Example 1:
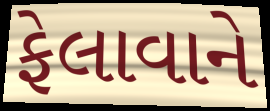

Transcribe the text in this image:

ફેલાવાને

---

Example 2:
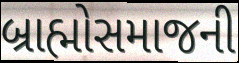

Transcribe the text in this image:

બ્રાહ્મોસમાજની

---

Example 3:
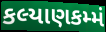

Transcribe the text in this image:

કલ્યાણકમ્મં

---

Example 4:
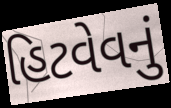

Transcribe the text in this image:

હિટવેવનું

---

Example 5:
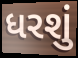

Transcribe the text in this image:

ધરશું